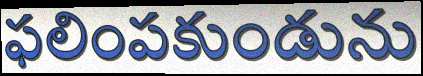
ఫలింపకుండును